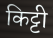
किट्टी